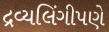
દ્રવ્યલિંગીપણે